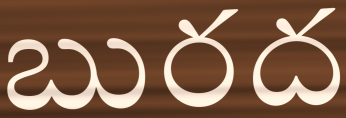
బురద